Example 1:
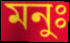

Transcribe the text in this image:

মনুঃ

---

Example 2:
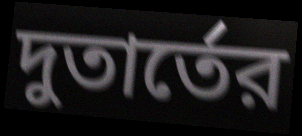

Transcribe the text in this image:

দুতার্তের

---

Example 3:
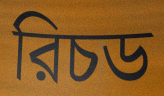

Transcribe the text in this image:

রিচড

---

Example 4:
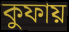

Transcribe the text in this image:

কুফায়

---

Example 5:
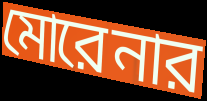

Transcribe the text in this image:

মোরেনার